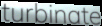
turbinate